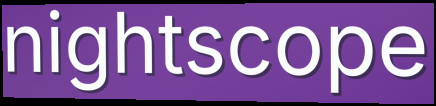
nightscope